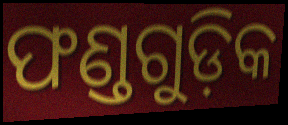
ଫଣ୍ଡଗୁଡ଼ିକ